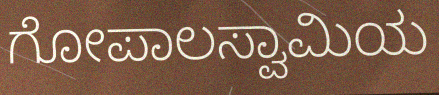
ಗೋಪಾಲಸ್ವಾಮಿಯ